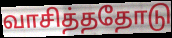
வாசித்ததோடு